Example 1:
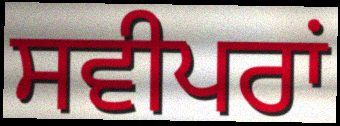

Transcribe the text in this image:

ਸਵੀਪਰਾਂ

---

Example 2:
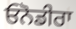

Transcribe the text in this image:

ਓਨੋਡੀਰਾ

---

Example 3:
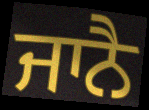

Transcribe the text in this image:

ਜਾਨੈ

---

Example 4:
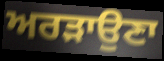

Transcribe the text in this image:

ਅਰੜਾਉਣਾ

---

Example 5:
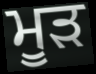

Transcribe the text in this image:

ਮੂੜ